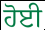
ਹੋਈ